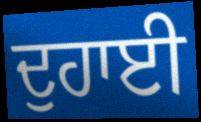
ਦੁਹਾਈ